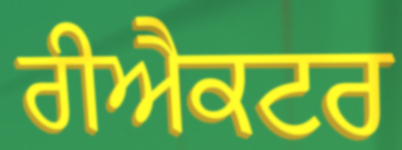
ਰੀਐਕਟਰ